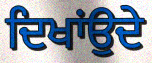
ਦਿਖਾਂਉਦੇ